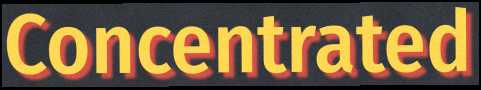
Concentrated